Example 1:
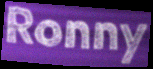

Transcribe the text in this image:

Ronny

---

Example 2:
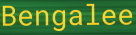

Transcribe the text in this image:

Bengalee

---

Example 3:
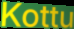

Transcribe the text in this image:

Kottu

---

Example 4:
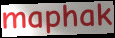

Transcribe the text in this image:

maphak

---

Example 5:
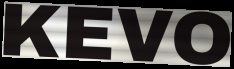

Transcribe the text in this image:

KEVO